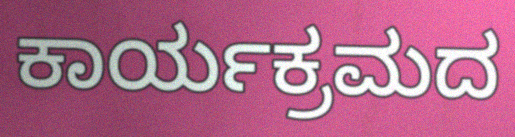
ಕಾರ್ಯಕ್ರಮದ